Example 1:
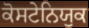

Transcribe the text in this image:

ਕੋਸਟੇਨਿਯੁਕ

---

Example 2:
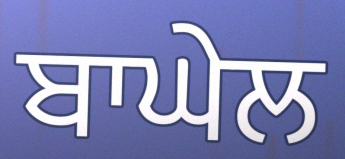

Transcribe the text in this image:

ਬਾਘੇਲ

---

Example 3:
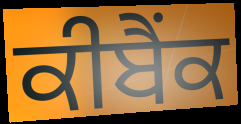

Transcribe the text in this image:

ਕੀਬੈਂਕ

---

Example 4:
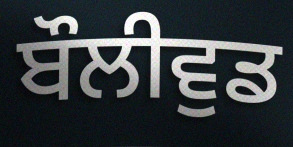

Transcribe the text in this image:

ਬੌਲੀਵੁਡ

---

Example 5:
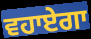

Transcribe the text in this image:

ਵਹਾਏਗਾ